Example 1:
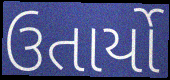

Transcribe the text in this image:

ઉતાર્યો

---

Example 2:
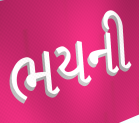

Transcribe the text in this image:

ભયની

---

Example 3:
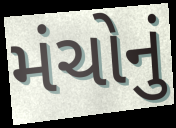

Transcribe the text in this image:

મંચોનું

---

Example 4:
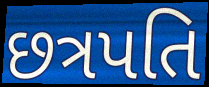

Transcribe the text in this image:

છત્રપતિ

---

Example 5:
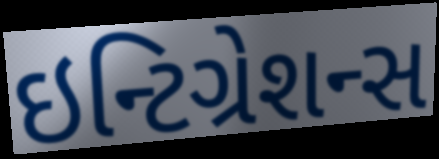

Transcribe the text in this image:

ઇન્ટિગ્રેશન્સ